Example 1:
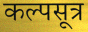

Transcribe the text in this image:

कल्पसूत्र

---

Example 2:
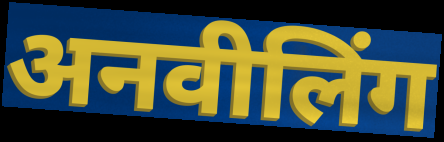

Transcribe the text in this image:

अनवीलिंग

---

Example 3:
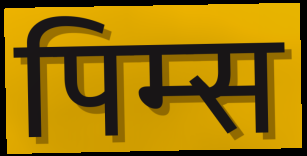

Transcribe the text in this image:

पिम्स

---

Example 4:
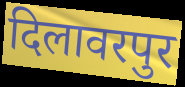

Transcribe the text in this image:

दिलावरपुर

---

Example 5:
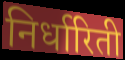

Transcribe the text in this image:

निर्धारिती